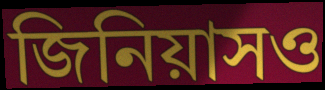
জিনিয়াসও